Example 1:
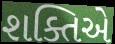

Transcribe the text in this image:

શક્તિએ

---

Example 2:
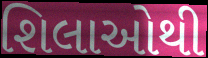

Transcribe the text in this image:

શિલાઓથી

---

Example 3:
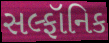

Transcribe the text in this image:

સલ્ફૉનિક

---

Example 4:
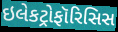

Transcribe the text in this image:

ઇલેકટ્રોફૉરિસિસ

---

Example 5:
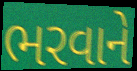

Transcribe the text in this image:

ભરવાને